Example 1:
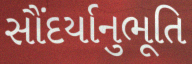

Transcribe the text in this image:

સૌંદર્યાનુભૂતિ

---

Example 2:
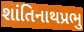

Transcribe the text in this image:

શાંતિનાથપ્રભુ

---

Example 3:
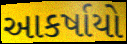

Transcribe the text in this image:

આકર્ષાયો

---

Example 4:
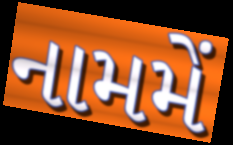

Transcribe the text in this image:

નામમેં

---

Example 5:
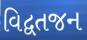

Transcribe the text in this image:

વિદ્વતજન